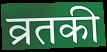
व्रतकी